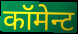
कॉमेन्ट